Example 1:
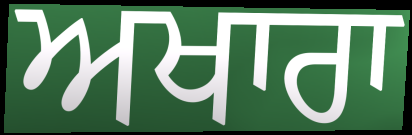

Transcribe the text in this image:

ਅਖਾਰਾ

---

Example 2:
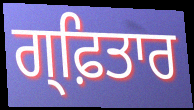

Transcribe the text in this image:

ਗ੍ਫ਼ਿਤਾਰ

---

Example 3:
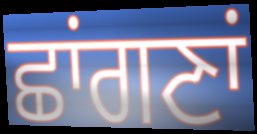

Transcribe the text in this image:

ਛਾਂਗਣਾਂ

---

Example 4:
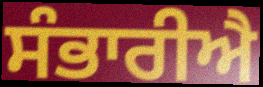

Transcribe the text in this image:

ਸੰਭਾਰੀਐ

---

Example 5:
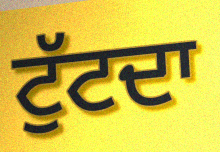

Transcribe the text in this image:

ਟੁੱਟਦਾ